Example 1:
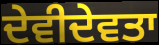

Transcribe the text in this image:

ਦੇਵੀਦੇਵਤਾ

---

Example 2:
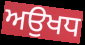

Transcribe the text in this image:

ਅਉਖਧ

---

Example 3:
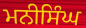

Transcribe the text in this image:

ਮਨੀਸਿੰਘ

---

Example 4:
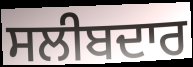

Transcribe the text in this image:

ਸਲੀਬਦਾਰ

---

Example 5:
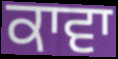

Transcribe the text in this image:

ਕਾਵਾ